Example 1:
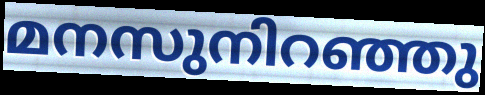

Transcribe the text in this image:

മനസുനിറഞ്ഞു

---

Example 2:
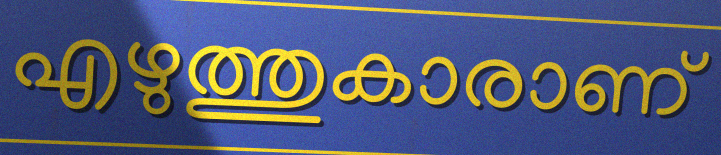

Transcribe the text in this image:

എഴുത്തുകാരാണ്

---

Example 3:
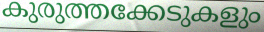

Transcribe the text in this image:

കുരുത്തക്കേടുകളും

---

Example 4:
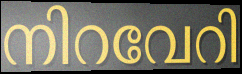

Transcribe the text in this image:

നിറവേറി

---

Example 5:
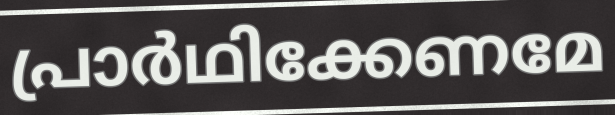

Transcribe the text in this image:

പ്രാർഥിക്കേണമേ